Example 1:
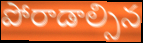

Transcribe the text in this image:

పోరాడాల్సిన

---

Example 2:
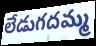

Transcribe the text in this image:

లేడుగదమ్మ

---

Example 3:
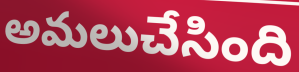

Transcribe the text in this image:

అమలుచేసింది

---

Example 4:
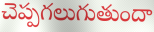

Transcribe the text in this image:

చెప్పగలుగుతుందా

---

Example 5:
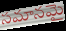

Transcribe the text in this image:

సమానమై